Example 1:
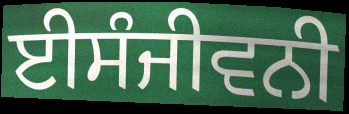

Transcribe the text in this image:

ਈਸੰਜੀਵਨੀ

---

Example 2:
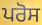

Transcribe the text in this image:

ਪਰੋਸ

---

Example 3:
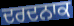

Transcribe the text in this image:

ਦਰਦਨਾਕ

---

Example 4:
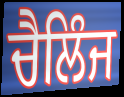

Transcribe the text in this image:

ਚੈਲਿੰਜ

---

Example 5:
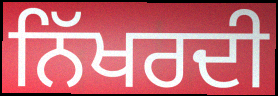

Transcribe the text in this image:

ਨਿੱਖਰਦੀ